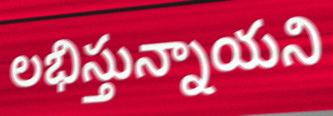
లభిస్తున్నాయని